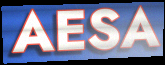
AESA